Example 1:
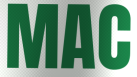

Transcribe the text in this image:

MAC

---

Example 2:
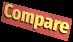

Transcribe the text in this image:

Compare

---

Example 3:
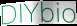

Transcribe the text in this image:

DIYbio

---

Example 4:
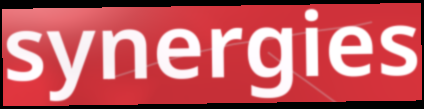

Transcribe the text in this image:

synergies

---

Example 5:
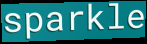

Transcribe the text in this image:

sparkle